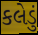
કલેડું